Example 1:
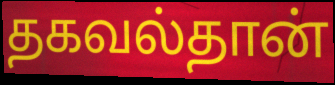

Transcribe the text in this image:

தகவல்தான்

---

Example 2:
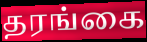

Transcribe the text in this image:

தரங்கை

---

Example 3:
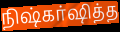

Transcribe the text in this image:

நிஷ்கர்ஷித்த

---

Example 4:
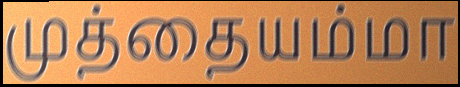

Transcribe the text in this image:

முத்தையம்மா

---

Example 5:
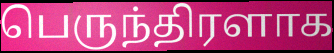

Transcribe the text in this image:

பெருந்திரளாக